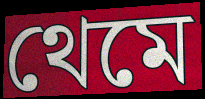
থেমে